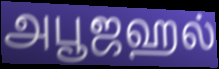
அபூஜஹல்